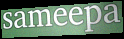
sameepa